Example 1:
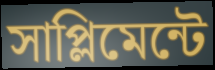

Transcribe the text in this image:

সাপ্লিমেন্টে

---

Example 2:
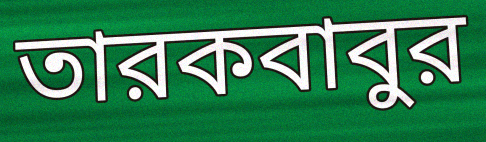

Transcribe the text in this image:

তারকবাবুর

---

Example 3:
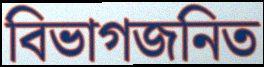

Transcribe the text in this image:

বিভাগজনিত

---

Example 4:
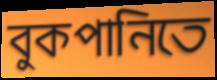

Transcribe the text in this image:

বুকপানিতে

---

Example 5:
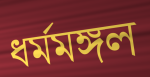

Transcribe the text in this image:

ধর্মমঙ্গল